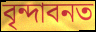
বৃন্দাবনত